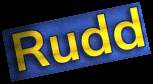
Rudd